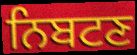
ਨਿਬਟਣ